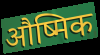
औष्मिक